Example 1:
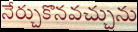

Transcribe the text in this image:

నేర్చుకొనవచ్చును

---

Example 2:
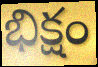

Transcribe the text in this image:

భిక్షం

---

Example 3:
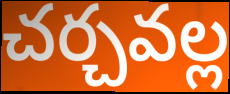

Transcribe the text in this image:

చర్చవల్ల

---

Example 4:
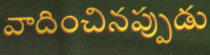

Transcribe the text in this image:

వాదించినప్పుడు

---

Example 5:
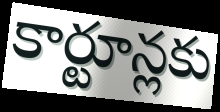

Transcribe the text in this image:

కార్టూన్లకు